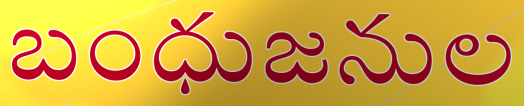
బంధుజనుల